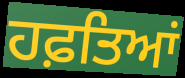
ਹਫ਼ਤਿਆਂ